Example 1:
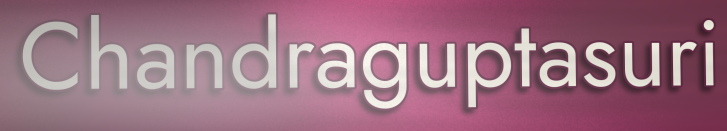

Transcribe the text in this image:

Chandraguptasuri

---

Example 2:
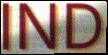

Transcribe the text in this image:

IND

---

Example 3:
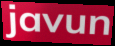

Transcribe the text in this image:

javun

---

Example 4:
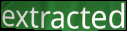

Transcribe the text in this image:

extracted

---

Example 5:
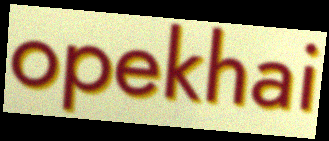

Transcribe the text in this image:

opekhai